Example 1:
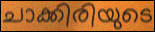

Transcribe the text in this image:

ചാക്കിരിയുടെ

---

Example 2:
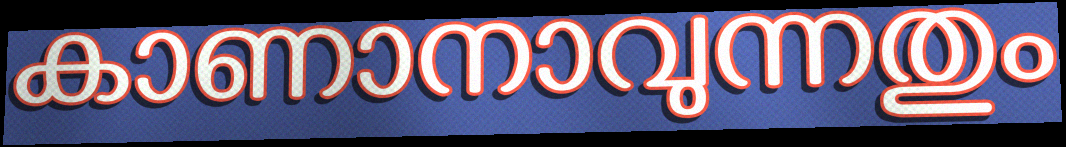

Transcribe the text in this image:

കാണാനാവുന്നതും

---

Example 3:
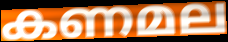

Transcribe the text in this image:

കണമല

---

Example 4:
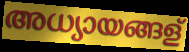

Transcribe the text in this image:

അധ്യായങ്ങള്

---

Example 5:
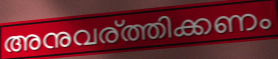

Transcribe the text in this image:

അനുവര്ത്തിക്കണം